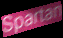
Spartan